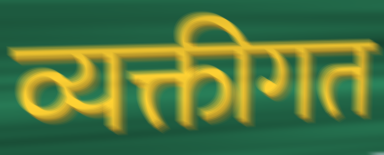
व्यक्तीगत